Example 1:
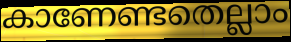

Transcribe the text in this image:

കാണേണ്ടതെല്ലാം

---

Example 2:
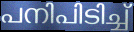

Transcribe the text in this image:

പനിപിടിച്ച്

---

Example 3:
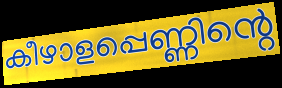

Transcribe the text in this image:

കീഴാളപ്പെണ്ണിന്റെ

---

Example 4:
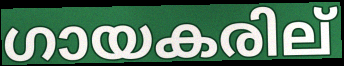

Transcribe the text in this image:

ഗായകരില്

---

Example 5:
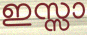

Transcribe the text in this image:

ഇസ്സാ